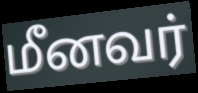
மீனவர்